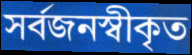
সর্বজনস্বীকৃত